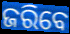
ଜରିବେ